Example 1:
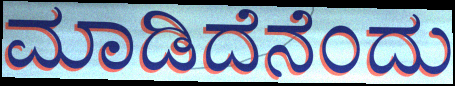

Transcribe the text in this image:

ಮಾಡಿದೆನೆಂದು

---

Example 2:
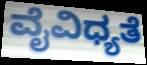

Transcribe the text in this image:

ವೈವಿಧ್ಯತೆ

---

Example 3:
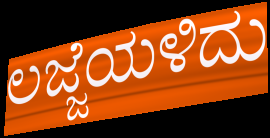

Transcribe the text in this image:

ಲಜ್ಜೆಯಳಿದು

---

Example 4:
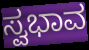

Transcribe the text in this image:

ಸ್ವಭಾವ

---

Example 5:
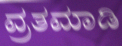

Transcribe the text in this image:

ವ್ರತಮಾಡಿ